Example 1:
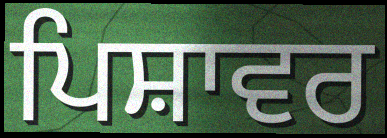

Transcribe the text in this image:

ਪਿਸ਼ਾਵਰ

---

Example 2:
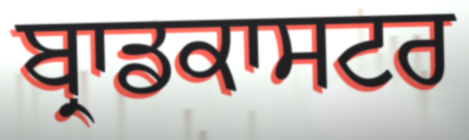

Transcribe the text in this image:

ਬ੍ਰਾਡਕਾਸਟਰ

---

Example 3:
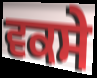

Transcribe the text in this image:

ਵਕਸੇ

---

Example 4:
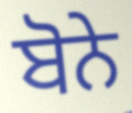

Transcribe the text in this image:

ਬੋਨੇ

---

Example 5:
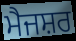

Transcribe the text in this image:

ਮੈਜਸ਼ਰ